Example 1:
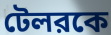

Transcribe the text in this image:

টেলরকে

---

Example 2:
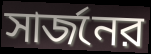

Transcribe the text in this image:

সার্জনের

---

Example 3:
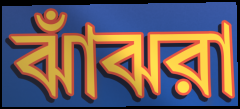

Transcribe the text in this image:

ঝাঁঝরা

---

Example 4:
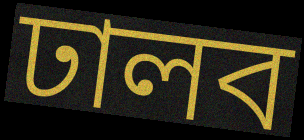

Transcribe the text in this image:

ঢালব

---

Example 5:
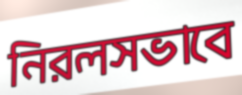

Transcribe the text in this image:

নিরলসভাবে